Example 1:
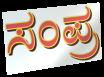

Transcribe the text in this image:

ಸಂಪ್ರ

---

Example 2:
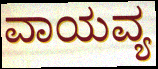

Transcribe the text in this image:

ವಾಯವ್ಯ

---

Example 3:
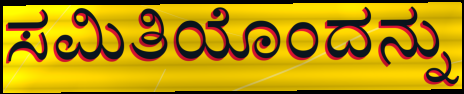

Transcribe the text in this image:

ಸಮಿತಿಯೊಂದನ್ನು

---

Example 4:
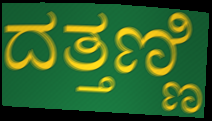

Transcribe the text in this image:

ದತ್ತಣ್ಣಿ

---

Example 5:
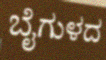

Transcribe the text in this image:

ಬೈಗುಳದ